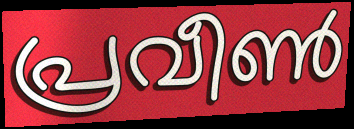
പ്രവീൺ